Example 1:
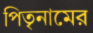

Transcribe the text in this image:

পিতৃনামের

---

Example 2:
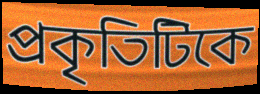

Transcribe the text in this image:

প্রকৃতিটিকে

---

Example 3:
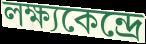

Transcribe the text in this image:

লক্ষ্যকেন্দ্রে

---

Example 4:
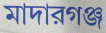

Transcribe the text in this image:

মাদারগঞ্জ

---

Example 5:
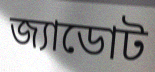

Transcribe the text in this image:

জ্যাডোট